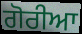
ਗੋਰੀਆ